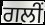
ਗਲੀਂ